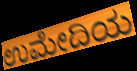
ಉಮೇದಿಯ